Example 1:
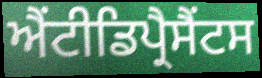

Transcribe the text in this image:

ਐਂਟੀਡਿਪ੍ਰੈਸੈਂਟਸ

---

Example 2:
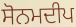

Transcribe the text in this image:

ਸੋਨਮਦੀਪ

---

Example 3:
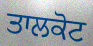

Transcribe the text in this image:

ਤਾਲਕੋਟ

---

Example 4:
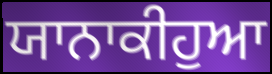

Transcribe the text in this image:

ਯਾਨਾਕੀਹੁਆ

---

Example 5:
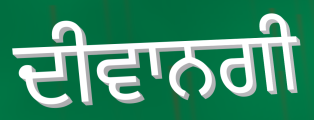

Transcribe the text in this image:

ਦੀਵਾਨਗੀ